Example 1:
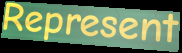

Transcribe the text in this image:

Represent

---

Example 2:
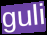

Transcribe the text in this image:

guli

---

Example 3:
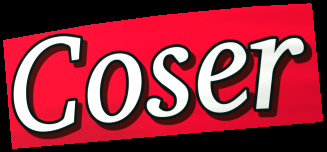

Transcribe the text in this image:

Coser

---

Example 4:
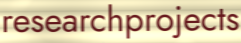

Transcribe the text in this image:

researchprojects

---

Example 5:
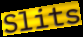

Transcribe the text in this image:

Slits